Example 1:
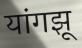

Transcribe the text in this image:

यांगझू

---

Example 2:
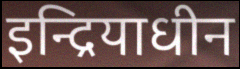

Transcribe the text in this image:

इन्द्रियाधीन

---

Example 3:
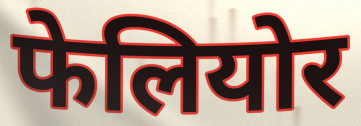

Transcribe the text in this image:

फेलियोर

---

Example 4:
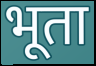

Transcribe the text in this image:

भूता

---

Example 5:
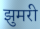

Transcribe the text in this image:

झुमरी